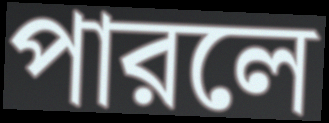
পারলে